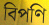
বিপণি